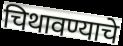
चिथावण्याचे